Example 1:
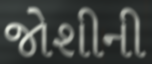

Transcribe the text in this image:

જોશીની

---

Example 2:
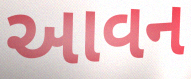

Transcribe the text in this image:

આવન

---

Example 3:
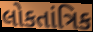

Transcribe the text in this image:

લોકતાંત્રિક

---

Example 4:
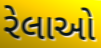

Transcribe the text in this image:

રેલાઓ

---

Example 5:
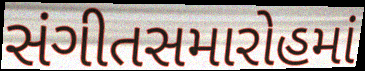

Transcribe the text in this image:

સંગીતસમારોહમાં